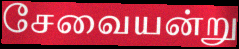
சேவையன்று